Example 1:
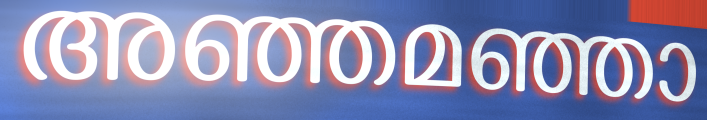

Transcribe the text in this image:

അഞ്ഞമഞ്ഞാ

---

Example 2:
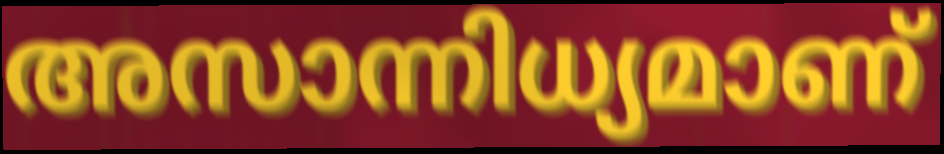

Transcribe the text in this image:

അസാന്നിധ്യമാണ്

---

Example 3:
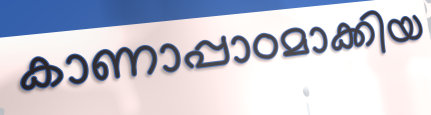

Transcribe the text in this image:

കാണാപ്പാഠമാക്കിയ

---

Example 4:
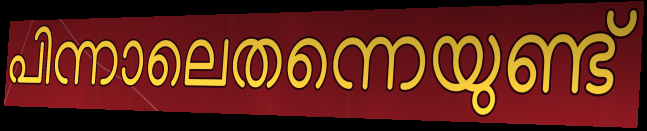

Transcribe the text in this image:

പിന്നാലെതന്നെയുണ്ട്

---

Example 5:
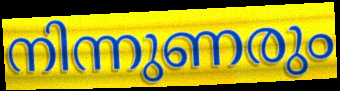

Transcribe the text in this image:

നിന്നുണരും